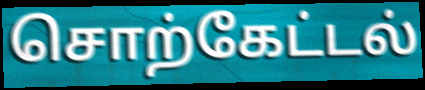
சொற்கேட்டல்